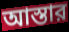
আস্তার